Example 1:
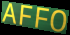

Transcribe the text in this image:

AFFO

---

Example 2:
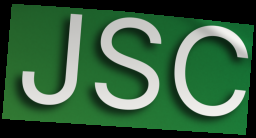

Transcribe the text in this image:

JSC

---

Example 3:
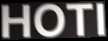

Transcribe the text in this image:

HOTI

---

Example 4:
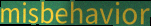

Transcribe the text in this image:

misbehavior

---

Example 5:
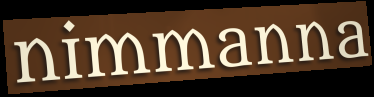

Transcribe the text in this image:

nimmanna